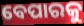
ବେପାରକୁ